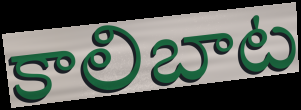
కాలిబాట